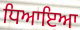
ਧਿਆਇਆ